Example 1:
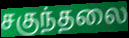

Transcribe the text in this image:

சகுந்தலை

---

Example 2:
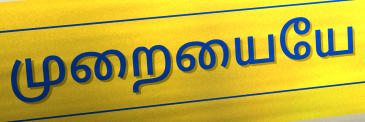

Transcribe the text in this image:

முறையையே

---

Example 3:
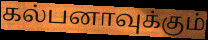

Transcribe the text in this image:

கல்பனாவுக்கும்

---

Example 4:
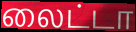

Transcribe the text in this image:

லைட்டா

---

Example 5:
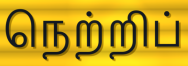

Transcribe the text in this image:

நெற்றிப்